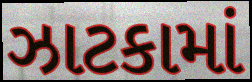
ઝાટકામાં